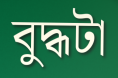
বুদ্ধটা